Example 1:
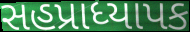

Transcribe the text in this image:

સહપ્રાધ્યાપક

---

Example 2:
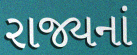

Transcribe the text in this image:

રાજ્યનાં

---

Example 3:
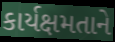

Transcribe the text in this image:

કાર્યક્ષમતાને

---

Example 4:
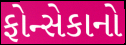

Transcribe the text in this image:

ફોન્સેકાનો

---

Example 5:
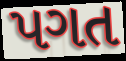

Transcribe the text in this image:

પગત